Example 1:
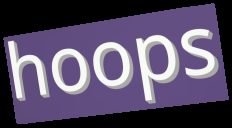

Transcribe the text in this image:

hoops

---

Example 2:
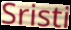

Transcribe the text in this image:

Sristi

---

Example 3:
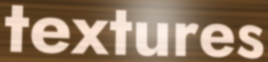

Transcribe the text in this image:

textures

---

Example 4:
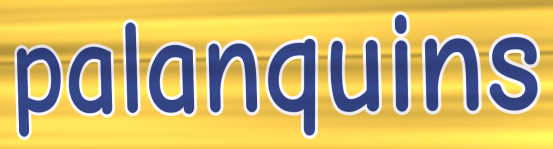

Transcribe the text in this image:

palanquins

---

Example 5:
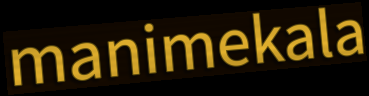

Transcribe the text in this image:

manimekala